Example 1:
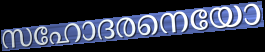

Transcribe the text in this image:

സഹോദരനെയോ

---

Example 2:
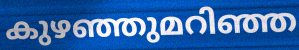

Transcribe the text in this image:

കുഴഞ്ഞുമറിഞ്ഞ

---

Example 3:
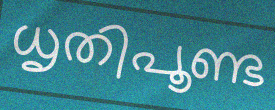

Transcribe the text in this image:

ധൃതിപൂണ്ട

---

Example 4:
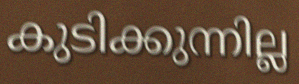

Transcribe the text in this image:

കുടിക്കുന്നില്ല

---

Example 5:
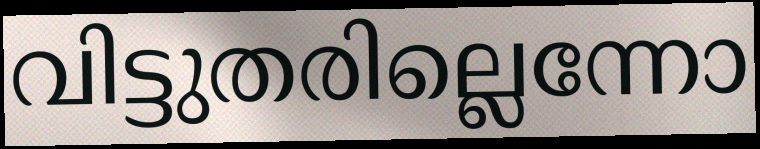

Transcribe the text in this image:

വിട്ടുതരില്ലെന്നോ